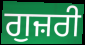
ਗੁਜ਼ਰੀ